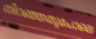
നിറഞ്ഞതുപോലെ